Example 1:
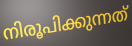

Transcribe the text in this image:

നിരൂപിക്കുന്നത്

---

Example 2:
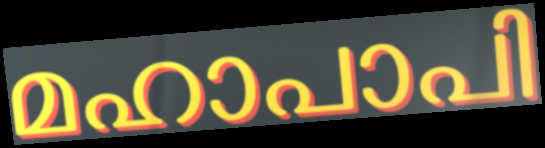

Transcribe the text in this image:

മഹാപാപി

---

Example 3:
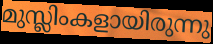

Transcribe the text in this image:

മുസ്ലിംകളായിരുന്നു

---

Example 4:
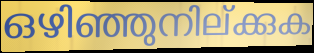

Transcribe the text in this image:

ഒഴിഞ്ഞുനില്ക്കുക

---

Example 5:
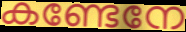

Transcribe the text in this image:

കണ്ടേനേ